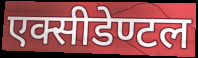
एक्सीडेण्टल